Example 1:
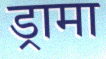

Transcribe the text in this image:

ड्रामा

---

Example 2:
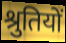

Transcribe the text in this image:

श्रुतियों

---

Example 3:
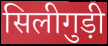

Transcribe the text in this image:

सिलीगुड़ी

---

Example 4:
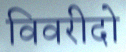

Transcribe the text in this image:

विवरीदो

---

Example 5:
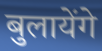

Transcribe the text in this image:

बुलायेंगे